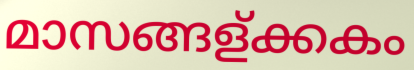
മാസങ്ങള്ക്കകം